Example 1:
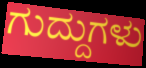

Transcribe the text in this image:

ಗುದ್ದುಗಳು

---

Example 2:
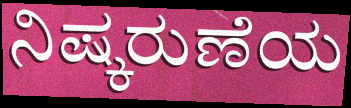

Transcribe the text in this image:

ನಿಷ್ಕರುಣೆಯ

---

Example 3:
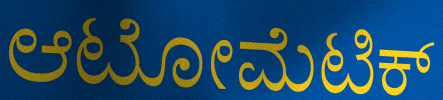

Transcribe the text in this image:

ಆಟೋಮೆಟಿಕ್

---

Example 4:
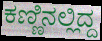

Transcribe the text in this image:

ಕಣ್ಣಿನಲ್ಲಿದ್ದ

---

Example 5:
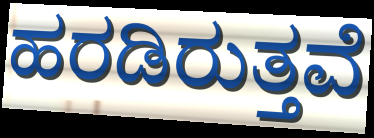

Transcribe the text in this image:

ಹರಡಿರುತ್ತವೆ